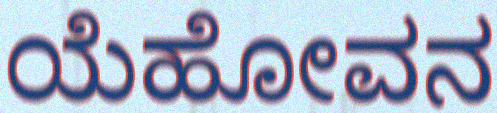
ಯೆಹೋವನ